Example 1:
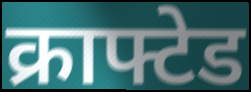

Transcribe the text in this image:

क्राफ्टेड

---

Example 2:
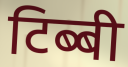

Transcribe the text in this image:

टिब्बी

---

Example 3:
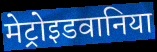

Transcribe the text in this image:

मेट्रोइडवानिया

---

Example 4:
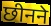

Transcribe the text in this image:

छीनने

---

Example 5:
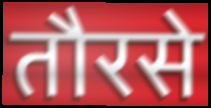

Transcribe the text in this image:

तौरसे